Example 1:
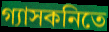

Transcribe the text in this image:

গ্যাসকনিতে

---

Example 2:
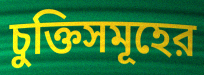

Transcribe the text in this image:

চুক্তিসমূহের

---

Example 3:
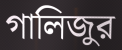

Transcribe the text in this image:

গালিজুর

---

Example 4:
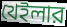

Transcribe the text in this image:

থেইলার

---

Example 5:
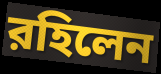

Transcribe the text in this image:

রহিলেন